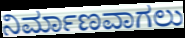
ನಿರ್ಮಾಣವಾಗಲು